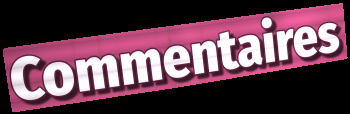
Commentaires